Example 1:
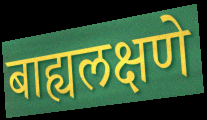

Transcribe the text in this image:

बाह्यलक्षणे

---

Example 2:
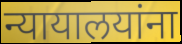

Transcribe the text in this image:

न्यायालयांना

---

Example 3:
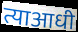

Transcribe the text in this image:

त्याआधी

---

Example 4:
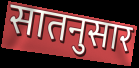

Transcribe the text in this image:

सातनुसार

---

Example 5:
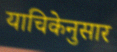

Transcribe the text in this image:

याचिकेनुसार